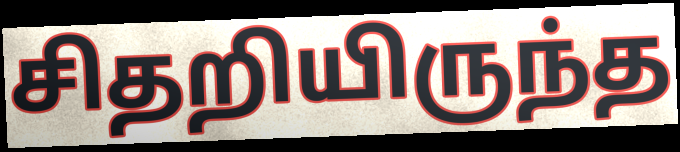
சிதறியிருந்த